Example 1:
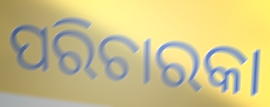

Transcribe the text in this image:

ପରିଚାରକା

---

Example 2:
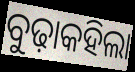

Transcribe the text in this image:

ବୁଢ଼ାକହିଲା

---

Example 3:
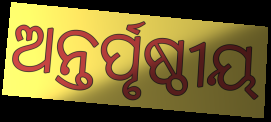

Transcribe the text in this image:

ଅନ୍ତର୍ପୃଷ୍ଠୀୟ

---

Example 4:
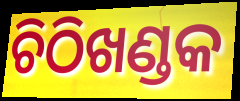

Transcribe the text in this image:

ଚିଠିଖଣ୍ଡକ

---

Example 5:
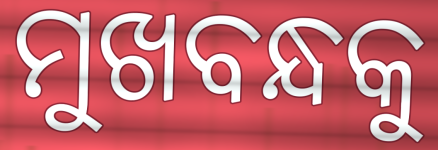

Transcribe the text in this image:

ମୁଖବନ୍ଧକୁ